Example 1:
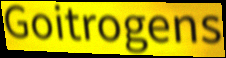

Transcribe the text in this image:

Goitrogens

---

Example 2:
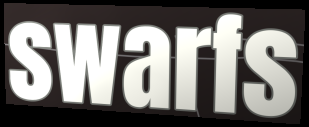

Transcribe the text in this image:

swarfs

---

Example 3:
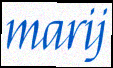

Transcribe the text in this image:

marij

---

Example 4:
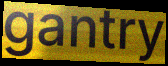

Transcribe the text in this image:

gantry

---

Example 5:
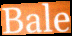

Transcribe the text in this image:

Bale